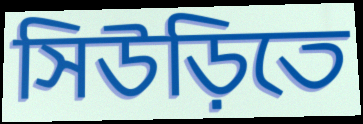
সিউড়িতে